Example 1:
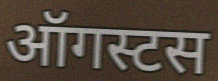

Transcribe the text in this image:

ऑगस्टस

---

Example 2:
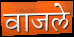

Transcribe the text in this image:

वाजले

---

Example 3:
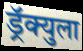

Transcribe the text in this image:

ड्रॅक्युला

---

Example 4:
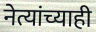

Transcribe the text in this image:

नेत्यांच्याही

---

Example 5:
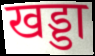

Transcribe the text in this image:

खड्डा